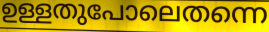
ഉള്ളതുപോലെതന്നെ